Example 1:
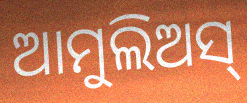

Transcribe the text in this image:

ଆମୁଲିଅସ୍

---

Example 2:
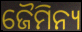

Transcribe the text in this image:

ଜୈମିନ୍ୟ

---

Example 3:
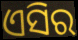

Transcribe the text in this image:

ଏସିର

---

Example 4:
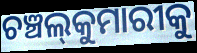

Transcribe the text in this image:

ଚଞ୍ଚଲ୍‍କୁମାରୀକୁ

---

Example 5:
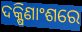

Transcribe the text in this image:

ଦକ୍ଷିଣାଂଶରେ